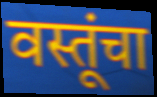
वस्तूंचा